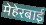
मेहेरबाई